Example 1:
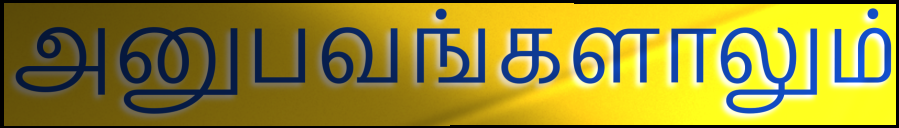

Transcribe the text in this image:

அனுபவங்களாலும்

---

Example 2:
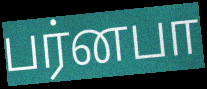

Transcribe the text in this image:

பர்னபா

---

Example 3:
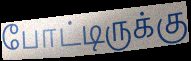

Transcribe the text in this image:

போட்டிருக்கு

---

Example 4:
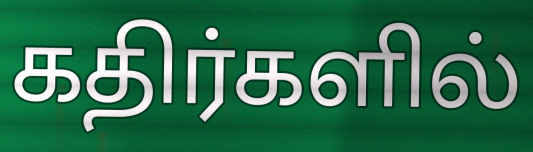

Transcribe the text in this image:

கதிர்களில்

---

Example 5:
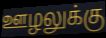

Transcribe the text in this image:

ஊழலுக்கு